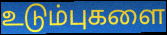
உடும்புகளை